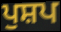
ਪੁਸ਼ਪ